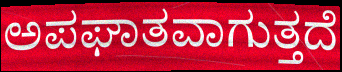
ಅಪಘಾತವಾಗುತ್ತದೆ